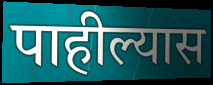
पाहील्यास